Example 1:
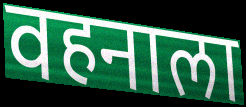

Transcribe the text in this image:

वहनाला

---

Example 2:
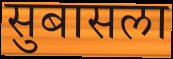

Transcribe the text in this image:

सुबासला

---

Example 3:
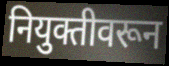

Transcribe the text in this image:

नियुक्तीवरून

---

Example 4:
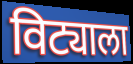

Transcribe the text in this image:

विट्याला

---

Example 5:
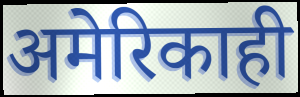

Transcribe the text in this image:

अमेरिकाही